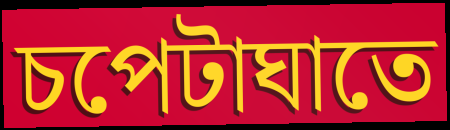
চপেটাঘাতে